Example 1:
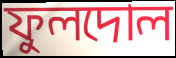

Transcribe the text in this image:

ফুলদোল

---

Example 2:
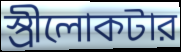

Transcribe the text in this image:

স্ত্রীলোকটার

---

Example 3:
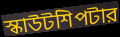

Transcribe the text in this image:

স্কাউটশিপটার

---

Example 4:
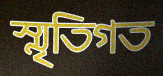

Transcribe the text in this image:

স্মৃতিগত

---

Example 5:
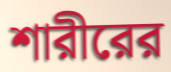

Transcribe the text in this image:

শারীরের